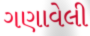
ગણાવેલી